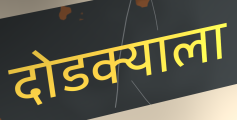
दोडक्याला